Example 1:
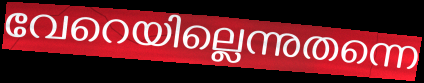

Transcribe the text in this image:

വേറെയില്ലെന്നുതന്നെ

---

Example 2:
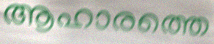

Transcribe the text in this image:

ആഹാരത്തെ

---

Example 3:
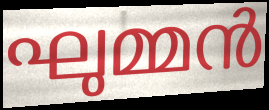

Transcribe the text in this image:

ഘുമ്മൻ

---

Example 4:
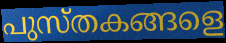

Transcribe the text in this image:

പുസ്തകങ്ങളെ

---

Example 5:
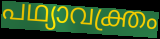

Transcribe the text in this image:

പഥ്യാവക്ത്രം